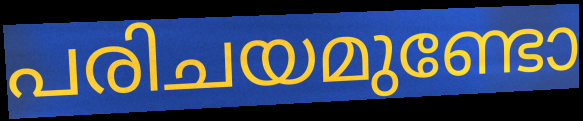
പരിചയമുണ്ടോ